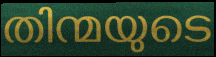
തിന്മയുടെ